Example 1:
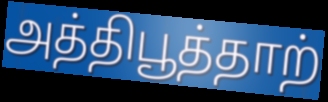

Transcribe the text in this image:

அத்திபூத்தாற்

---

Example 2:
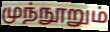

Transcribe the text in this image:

முந்நூறும்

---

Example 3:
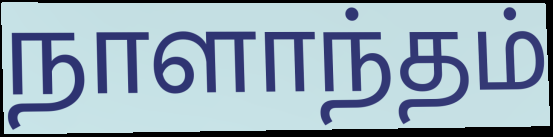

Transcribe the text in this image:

நாளாந்தம்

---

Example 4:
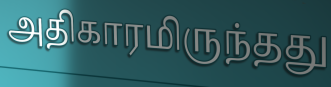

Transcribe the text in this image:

அதிகாரமிருந்தது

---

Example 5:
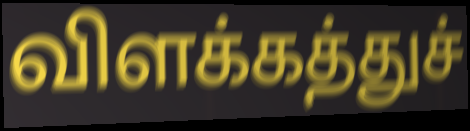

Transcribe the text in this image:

விளக்கத்துச்